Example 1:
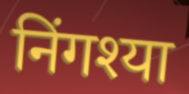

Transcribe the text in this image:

निंगश्या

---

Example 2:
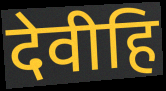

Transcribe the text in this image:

देवीहि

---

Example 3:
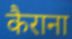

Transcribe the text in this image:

कैराना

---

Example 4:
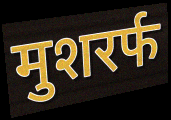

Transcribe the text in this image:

मुशरर्फ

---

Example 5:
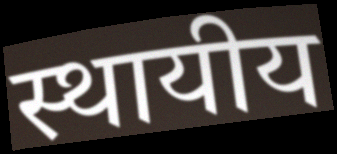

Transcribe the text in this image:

स्थायीय